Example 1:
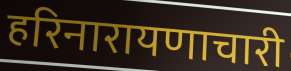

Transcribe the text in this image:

हरिनारायणाचारी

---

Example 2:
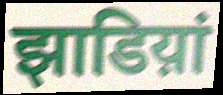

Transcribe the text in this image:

झाडिय़ां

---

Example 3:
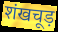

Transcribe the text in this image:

शंखचूड़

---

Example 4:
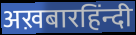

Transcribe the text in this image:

अख़बारहिंन्दी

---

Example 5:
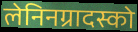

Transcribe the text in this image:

लेनिनग्रादस्को